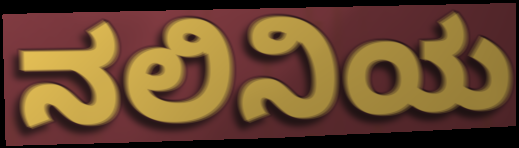
ನಲಿನಿಯ